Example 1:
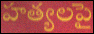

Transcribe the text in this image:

హత్యలపై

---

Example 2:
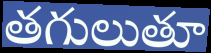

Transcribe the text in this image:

తగులుతూ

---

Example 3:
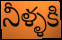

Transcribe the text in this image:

నీళ్ళకి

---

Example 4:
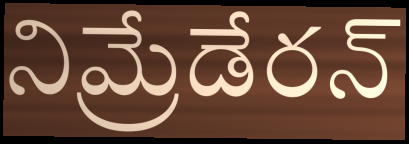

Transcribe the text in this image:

నిమ్రేడేరన్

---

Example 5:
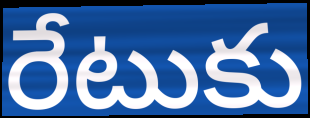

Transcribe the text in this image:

రేటుకు